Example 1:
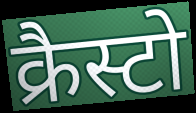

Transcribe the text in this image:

क्रैस्टो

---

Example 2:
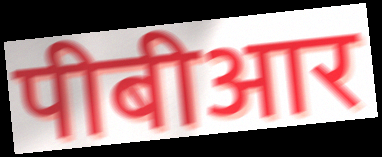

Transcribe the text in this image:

पीबीआर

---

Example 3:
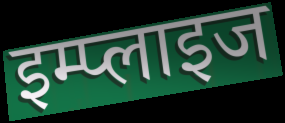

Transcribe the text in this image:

इम्प्लाइज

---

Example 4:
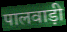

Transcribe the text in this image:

पालवाड़ी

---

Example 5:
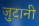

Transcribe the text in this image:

जुटानी